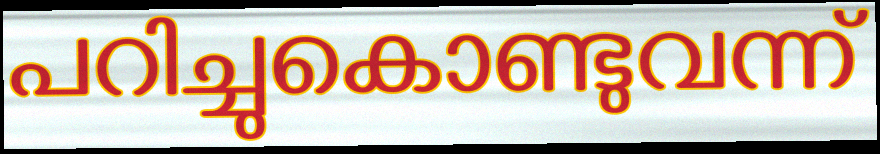
പറിച്ചുകൊണ്ടുവന്ന്